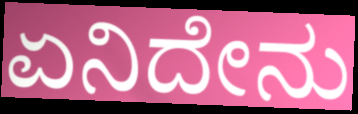
ಏನಿದೇನು